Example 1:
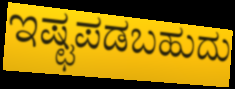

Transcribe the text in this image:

ಇಷ್ಟಪಡಬಹುದು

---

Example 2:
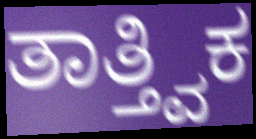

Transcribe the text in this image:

ತಾತ್ತ್ವಿಕ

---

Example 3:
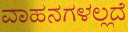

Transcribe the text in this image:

ವಾಹನಗಳಲ್ಲದೆ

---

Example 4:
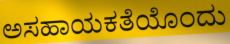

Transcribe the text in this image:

ಅಸಹಾಯಕತೆಯೊಂದು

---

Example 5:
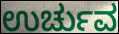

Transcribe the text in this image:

ಉರ್ಚುವ